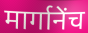
मार्गानेंच